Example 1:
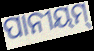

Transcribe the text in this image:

ପାନୀୟମ୍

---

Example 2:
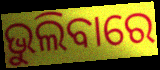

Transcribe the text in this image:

ଭୁଲିବାରେ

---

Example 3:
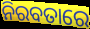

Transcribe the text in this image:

ନିରବତାରେ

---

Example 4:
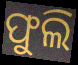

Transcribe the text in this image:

ଫୁଲି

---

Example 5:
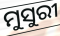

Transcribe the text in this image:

ମୁସୁରୀ